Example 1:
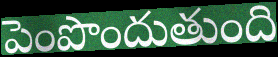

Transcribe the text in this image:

పెంపొందుతుంది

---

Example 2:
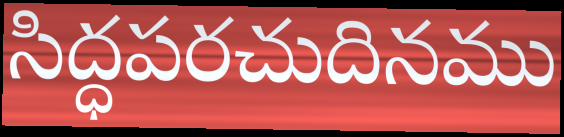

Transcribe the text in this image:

సిద్ధపరచుదినము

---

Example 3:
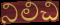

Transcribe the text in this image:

నిలిచి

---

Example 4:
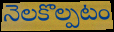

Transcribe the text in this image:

నెలకొల్పటం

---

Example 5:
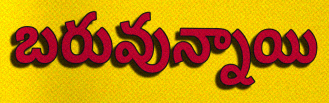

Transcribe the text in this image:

బరువున్నాయి